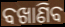
ବଖାଣିବ